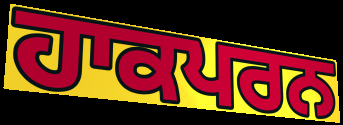
ਹਾਕਪਰਨ